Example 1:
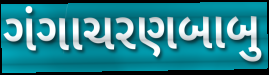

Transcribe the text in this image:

ગંગાચરણબાબુ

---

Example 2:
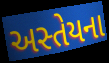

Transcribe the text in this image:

અસ્તેયના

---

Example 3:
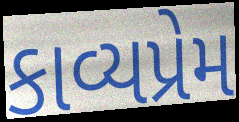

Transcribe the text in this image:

કાવ્યપ્રેમ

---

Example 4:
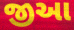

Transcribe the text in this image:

જીઆ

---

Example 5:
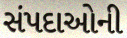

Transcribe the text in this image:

સંપદાઓની